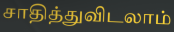
சாதித்துவிடலாம்